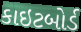
કાઇટબોર્ડ